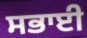
ਸਭਾਈ